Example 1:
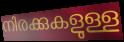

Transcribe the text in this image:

നിരക്കുകളുള്ള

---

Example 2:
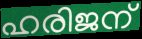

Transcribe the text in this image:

ഹരിജന്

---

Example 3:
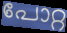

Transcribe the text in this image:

പോറ്റ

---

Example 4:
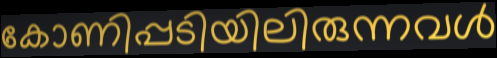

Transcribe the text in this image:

കോണിപ്പടിയിലിരുന്നവൾ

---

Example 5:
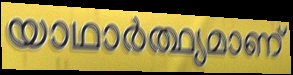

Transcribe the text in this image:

യാഥാർത്ഥ്യമാണ്